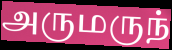
அருமருந்